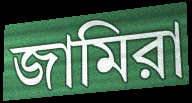
জামিরা